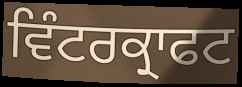
ਵਿੰਟਰਕ੍ਰਾਫਟ